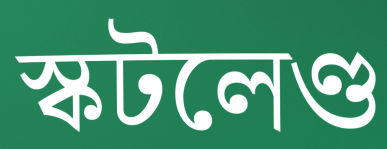
স্কটলেণ্ড